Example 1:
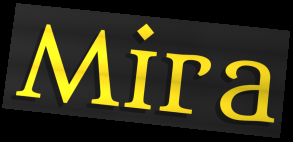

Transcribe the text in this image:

Mira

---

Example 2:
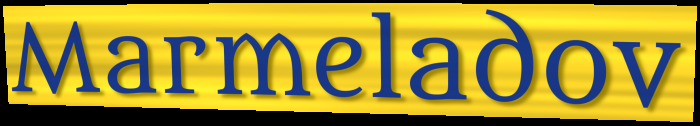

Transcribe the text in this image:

Marmeladov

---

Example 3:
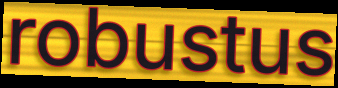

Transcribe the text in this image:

robustus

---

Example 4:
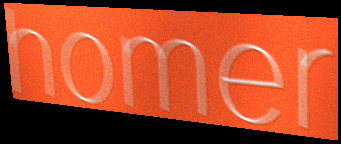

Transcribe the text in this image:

homer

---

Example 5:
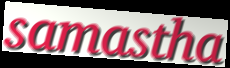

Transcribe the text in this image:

samastha